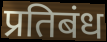
प्रतिबंध